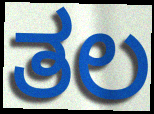
ತಲ